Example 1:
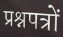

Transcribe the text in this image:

प्रश्नपत्रों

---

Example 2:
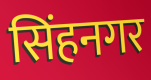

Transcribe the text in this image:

सिंहनगर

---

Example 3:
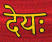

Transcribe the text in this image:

देयः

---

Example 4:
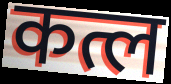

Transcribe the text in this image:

कत्‍ल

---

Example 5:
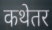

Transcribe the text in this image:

कथेतर